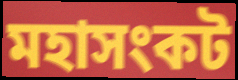
মহাসংকট